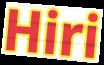
Hiri